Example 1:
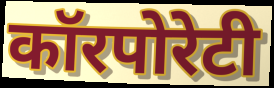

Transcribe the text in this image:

कॉरपोरेटी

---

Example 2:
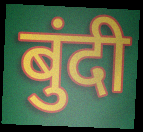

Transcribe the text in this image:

बुंदी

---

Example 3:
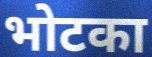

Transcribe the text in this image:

भोटका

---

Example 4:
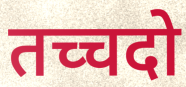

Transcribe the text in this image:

तच्चदो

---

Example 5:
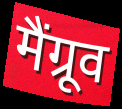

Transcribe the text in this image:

मैंग्रूव